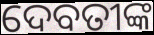
ଦେବତୀଙ୍କ